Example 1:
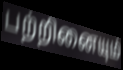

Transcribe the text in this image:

பற்றினையும்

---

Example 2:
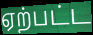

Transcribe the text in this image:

ஏற்பட்ட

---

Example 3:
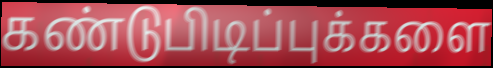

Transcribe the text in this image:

கண்டுபிடிப்புக்களை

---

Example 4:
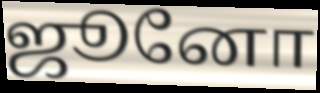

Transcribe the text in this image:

ஜூனோ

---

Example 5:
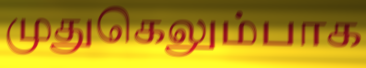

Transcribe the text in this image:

முதுகெலும்பாக